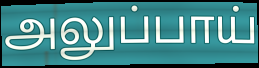
அலுப்பாய்